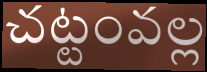
చట్టంవల్ల